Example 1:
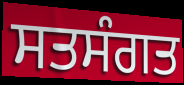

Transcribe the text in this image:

ਸਤਸੰਗਤ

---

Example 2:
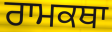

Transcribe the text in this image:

ਰਾਮਕਥਾ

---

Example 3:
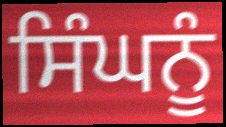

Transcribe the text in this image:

ਸਿੰਘਨੂੰ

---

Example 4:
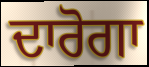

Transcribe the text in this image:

ਦਾਰੋਗਾ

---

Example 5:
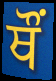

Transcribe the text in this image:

ਥੌਂ